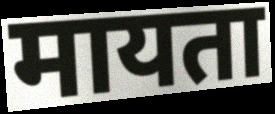
मायता